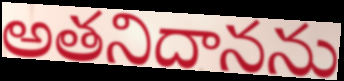
అతనిదానను